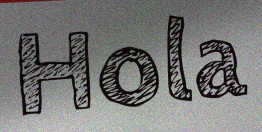
Hola